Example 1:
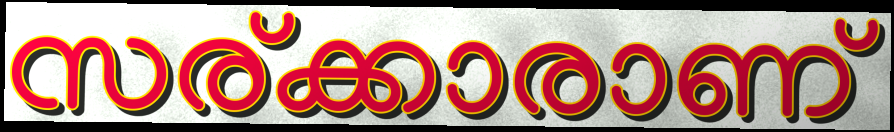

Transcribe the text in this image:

സര്ക്കാരാണ്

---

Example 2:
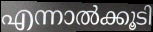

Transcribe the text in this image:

എന്നാൽക്കൂടി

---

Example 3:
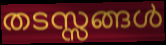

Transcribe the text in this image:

തടസ്സങ്ങൾ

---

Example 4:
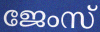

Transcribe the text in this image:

ജേംസ്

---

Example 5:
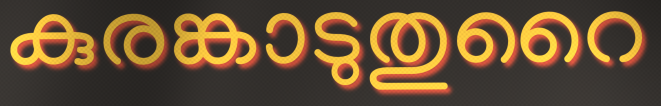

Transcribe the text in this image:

കുരങ്കാടുതുറൈ